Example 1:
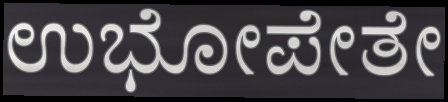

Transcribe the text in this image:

ಉಭೋಪೇತೇ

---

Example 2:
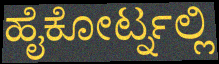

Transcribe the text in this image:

ಹೈಕೋರ್ಟ್ನಲ್ಲಿ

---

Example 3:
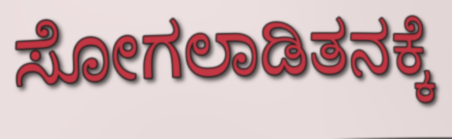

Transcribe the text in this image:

ಸೋಗಲಾಡಿತನಕ್ಕೆ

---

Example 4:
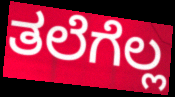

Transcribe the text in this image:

ತಲೆಗೆಲ್ಲ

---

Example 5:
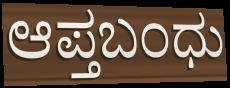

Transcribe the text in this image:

ಆಪ್ತಬಂಧು